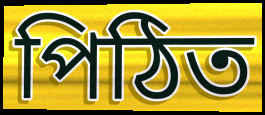
পিঠিত